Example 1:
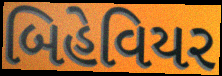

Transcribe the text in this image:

બિહેવિયર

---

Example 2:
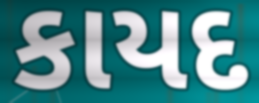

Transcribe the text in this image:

કાયદ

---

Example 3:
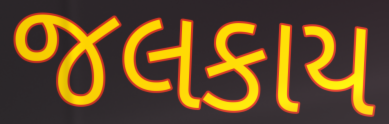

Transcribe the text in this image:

જલકાય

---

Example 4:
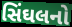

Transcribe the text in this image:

સિંઘલનો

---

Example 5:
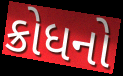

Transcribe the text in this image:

ક્રોધનો